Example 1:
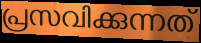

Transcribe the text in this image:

പ്രസവിക്കുന്നത്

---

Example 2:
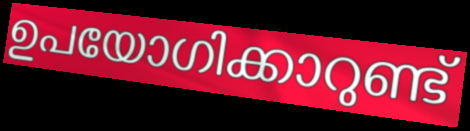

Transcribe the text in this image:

ഉപയോഗിക്കാറുണ്ട്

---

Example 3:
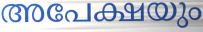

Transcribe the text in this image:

അപേക്ഷയും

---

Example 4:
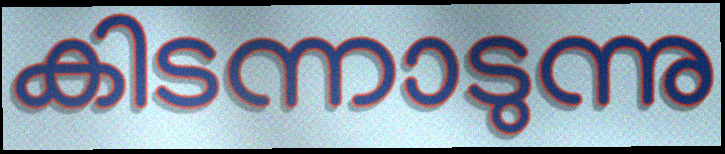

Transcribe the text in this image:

കിടന്നാടുന്നു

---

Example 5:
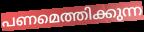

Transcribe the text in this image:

പണമെത്തിക്കുന്ന